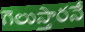
గెలుస్తారనే